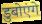
डुबोएंगे